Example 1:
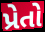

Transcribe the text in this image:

પ્રેતો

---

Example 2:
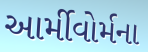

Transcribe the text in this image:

આર્મીવોર્મના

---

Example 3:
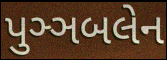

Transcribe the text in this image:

પુઞ્ઞબલેન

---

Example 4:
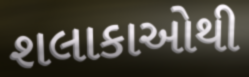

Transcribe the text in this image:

શલાકાઓથી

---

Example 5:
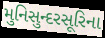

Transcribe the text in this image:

મુનિસુન્દરસૂરિના